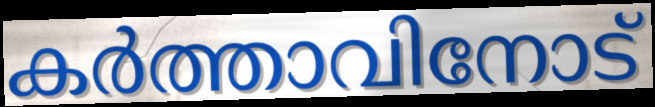
കർത്താവിനോട്